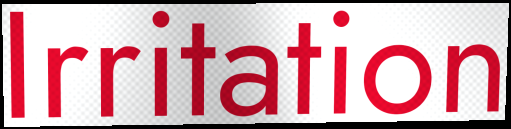
Irritation